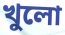
খুলো